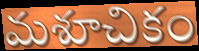
మశూచికం